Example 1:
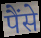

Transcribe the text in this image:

पैंसे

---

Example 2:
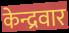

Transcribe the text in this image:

केन्द्रवार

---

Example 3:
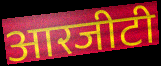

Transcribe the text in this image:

आरजीटी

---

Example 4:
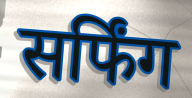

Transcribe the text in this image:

सर्फिंग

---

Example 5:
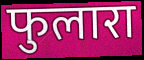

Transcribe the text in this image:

फुलारा